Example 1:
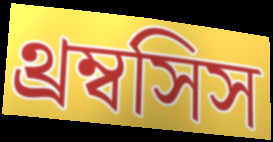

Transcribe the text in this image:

থ্রম্বসিস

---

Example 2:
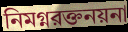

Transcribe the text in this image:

নিমগ্নরক্তনয়না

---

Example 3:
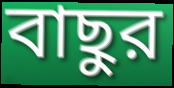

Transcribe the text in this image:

বাছুর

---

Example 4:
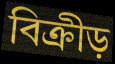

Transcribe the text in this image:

বিক্রীড়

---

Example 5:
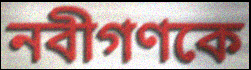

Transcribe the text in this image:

নবীগণকে